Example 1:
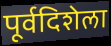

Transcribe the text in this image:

पूर्वदिशेला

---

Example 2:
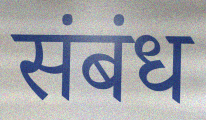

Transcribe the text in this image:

संबंध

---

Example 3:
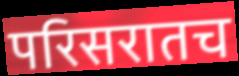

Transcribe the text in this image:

परिसरातच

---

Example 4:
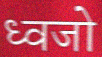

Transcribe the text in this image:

ध्वजो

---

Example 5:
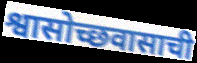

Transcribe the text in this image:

श्वासोच्छवासाची